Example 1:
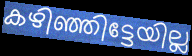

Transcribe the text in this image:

കഴിഞ്ഞിട്ടേയില്ല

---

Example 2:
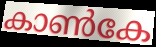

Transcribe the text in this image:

കാൺകേ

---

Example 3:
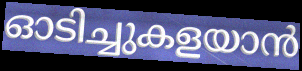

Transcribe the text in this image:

ഓടിച്ചുകളയാൻ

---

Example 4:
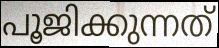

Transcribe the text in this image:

പൂജിക്കുന്നത്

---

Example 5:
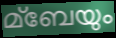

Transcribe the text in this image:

മ്ബേയും